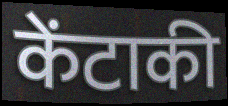
केंटाकी